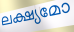
ലക്ഷ്യമോ